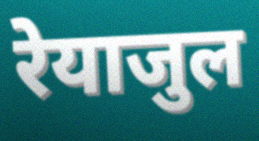
रेयाजुल